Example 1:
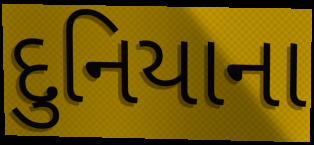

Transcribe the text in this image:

દુનિયાના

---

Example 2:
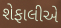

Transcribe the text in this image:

શેફાલીએ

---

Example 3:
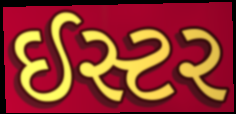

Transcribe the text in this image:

ઈસ્ટર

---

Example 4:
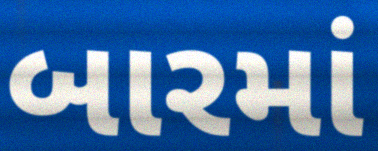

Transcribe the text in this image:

બારમાં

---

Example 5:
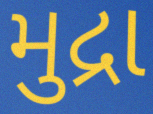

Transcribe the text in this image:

મુદ્રા